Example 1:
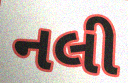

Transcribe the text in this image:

નલી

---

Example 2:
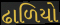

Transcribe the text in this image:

ઢાળિયો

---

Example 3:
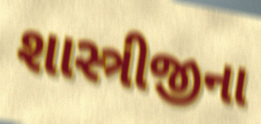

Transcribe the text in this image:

શાસ્ત્રીજીના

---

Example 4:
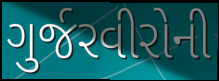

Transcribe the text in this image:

ગુર્જરવીરોની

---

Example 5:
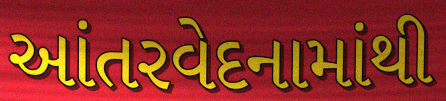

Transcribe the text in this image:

આંતરવેદનામાંથી